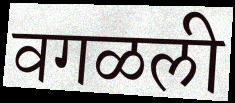
वगळली